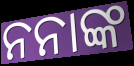
ନନାଙ୍କ